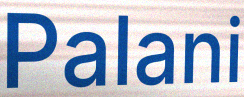
Palani